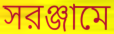
সরঞ্জামে